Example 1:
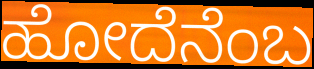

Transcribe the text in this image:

ಹೋದೆನೆಂಬ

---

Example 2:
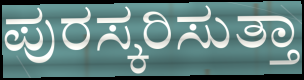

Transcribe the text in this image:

ಪುರಸ್ಕರಿಸುತ್ತಾ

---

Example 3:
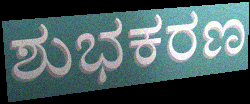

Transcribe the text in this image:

ಶುಭಕರಣ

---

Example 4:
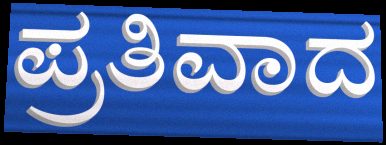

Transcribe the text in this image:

ಪ್ರತಿವಾದ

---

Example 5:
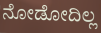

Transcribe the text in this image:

ನೋಡೋದಿಲ್ಲ